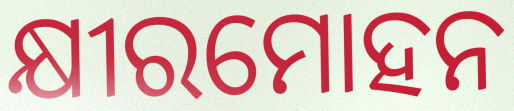
କ୍ଷୀରମୋହନ